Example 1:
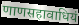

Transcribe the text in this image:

णाणसहावाधियं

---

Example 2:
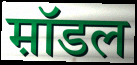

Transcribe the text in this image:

म़ॉडल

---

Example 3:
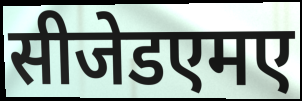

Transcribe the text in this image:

सीजेडएमए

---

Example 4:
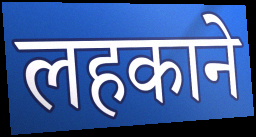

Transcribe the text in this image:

लहकाने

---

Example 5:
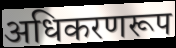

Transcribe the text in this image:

अधिकरणरूप